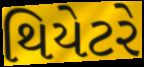
થિયેટરે